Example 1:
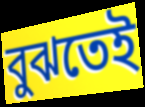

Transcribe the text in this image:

বুঝতেই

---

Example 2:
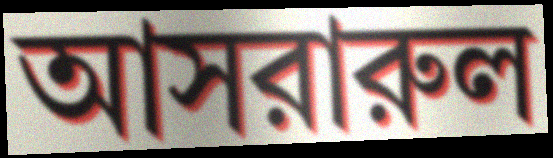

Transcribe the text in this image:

আসরারুল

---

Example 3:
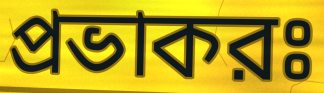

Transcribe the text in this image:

প্রভাকরঃ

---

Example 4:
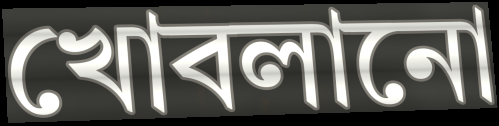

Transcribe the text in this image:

খোবলানো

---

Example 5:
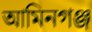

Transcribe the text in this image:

আমিনগঞ্জ